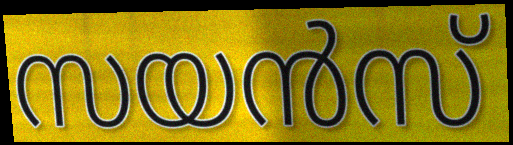
സയൻസ്